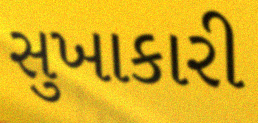
સુખાકારી